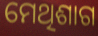
ମେଥିଶାଗ